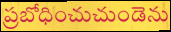
ప్రబోధించుచుండెను